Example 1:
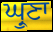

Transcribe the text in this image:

ਘ੍ਰੁਣਾ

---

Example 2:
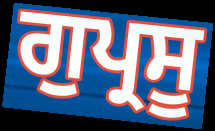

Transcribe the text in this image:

ਗੁਪ੍ਰਸੂ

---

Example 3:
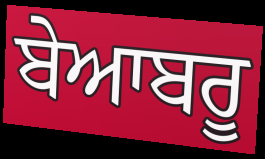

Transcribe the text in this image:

ਬੇਆਬਰੂ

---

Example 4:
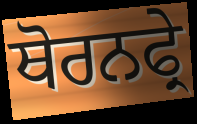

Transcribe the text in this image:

ਥੋਰਨਫ੍ਰੇ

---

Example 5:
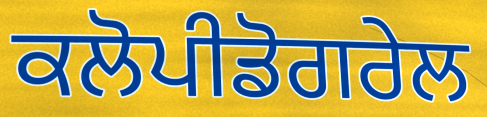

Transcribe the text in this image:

ਕਲੋਪੀਡੋਗਰੇਲ